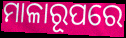
ମାଳାରୂପରେ